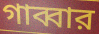
গাব্বার